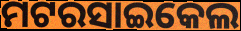
ମଟରସାଇକେଲ